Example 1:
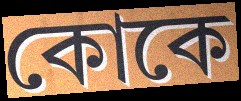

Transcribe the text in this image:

কোকে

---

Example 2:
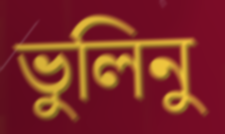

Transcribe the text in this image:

ভুলিনু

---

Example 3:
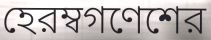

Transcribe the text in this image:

হেরম্বগণেশের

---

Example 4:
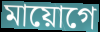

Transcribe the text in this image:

মায়োগে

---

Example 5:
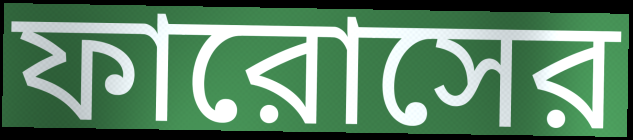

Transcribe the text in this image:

ফারোসের